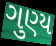
ગુણ્ય